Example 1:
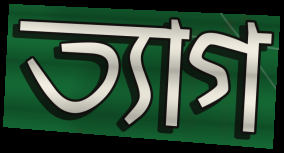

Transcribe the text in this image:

ত্যাগ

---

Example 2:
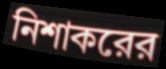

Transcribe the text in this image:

নিশাকরের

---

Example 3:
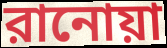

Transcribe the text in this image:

রানোয়া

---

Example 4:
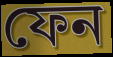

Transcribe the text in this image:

ফেন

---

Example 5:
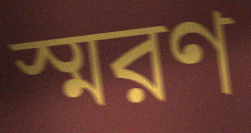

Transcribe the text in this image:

স্মরণ